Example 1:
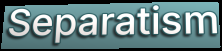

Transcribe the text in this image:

Separatism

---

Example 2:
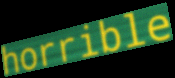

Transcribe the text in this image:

horrible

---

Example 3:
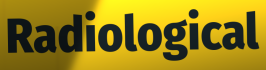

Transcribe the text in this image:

Radiological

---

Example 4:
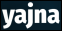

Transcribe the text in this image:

yajna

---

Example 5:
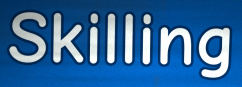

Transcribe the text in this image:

Skilling